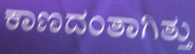
ಕಾಣದಂತಾಗಿತ್ತು